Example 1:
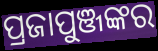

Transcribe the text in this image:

ପ୍ରଜାପୁଞ୍ଜଙ୍କର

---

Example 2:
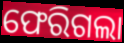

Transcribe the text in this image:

ଫେରିଗଲା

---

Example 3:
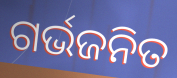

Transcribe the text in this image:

ଗର୍ଭଜନିତ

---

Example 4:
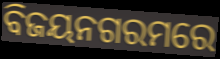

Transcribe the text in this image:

ବିଜୟନଗରମରେ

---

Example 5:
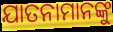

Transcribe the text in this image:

ଯାତନାମାନଙ୍କୁ